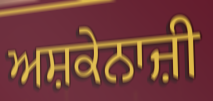
ਅਸ਼ਕੇਨਾਜ਼ੀ